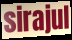
sirajul